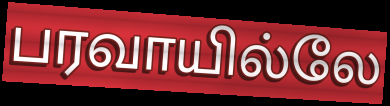
பரவாயில்லே